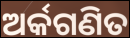
ଅର୍କଗଣିତ